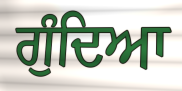
ਗੁੰਦਿਆ